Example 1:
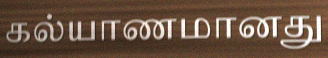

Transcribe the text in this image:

கல்யாணமானது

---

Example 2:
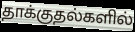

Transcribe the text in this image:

தாக்குதல்களில்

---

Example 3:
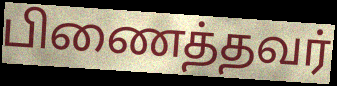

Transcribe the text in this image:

பிணைத்தவர்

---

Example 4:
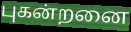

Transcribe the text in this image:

புகன்றனை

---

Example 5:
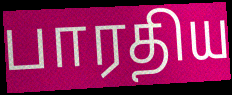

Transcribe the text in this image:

பாரதிய